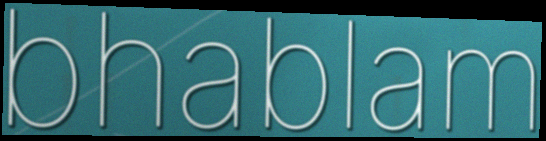
bhablam